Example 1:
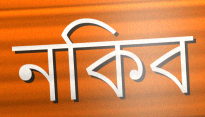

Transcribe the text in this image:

নকিব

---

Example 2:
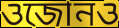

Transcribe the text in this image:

ওজোনও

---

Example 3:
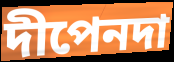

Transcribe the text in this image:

দীপেনদা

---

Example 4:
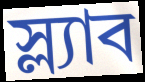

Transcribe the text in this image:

স্ল্যাব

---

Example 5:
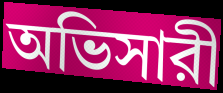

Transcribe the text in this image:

অভিসারী